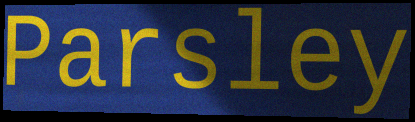
Parsley